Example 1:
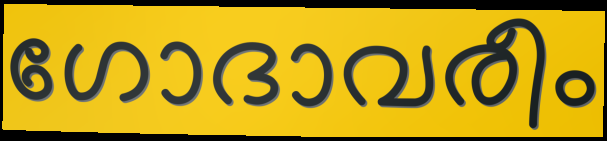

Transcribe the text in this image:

ഗോദാവരീം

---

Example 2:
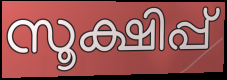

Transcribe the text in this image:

സൂക്ഷിപ്പ്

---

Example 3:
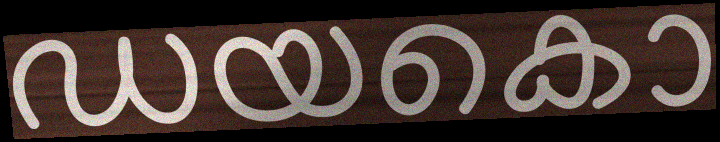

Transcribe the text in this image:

ഡയകൊ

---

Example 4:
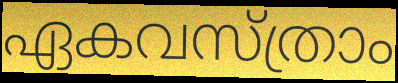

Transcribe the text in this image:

ഏകവസ്ത്രാം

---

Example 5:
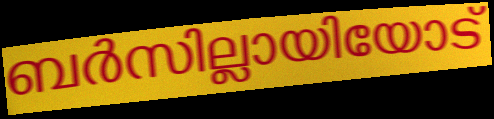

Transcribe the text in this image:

ബർസില്ലായിയോട്